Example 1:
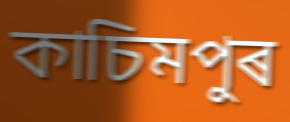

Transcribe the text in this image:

কাচিমপুৰ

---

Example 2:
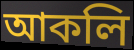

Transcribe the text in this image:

আকলি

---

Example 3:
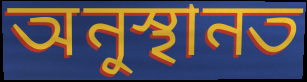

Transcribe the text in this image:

অনুস্থানত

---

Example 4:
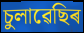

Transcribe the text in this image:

চুলাৱেছিৰ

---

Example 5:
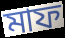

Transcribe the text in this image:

মাফ